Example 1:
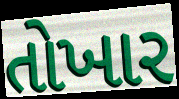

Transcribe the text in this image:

તોખાર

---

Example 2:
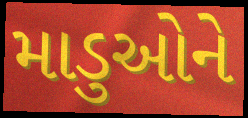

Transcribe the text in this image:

માડુઓને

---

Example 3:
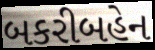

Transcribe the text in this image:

બકરીબહેન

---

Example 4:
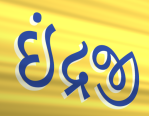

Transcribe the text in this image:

ઇંદ્રજી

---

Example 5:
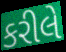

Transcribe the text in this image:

કરીલે